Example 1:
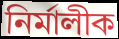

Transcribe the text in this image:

নিৰ্মালীক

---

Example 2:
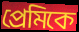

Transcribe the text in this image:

প্ৰেমিকে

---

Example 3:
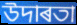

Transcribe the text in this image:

উদাৰতা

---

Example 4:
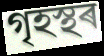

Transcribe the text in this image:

গৃহস্থৰ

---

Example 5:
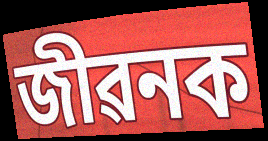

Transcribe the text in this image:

জীৱনক